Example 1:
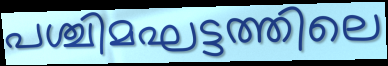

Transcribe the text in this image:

പശ്ചിമഘട്ടത്തിലെ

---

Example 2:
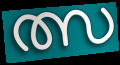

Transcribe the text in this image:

ത്സ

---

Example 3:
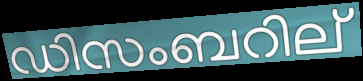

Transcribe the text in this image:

ഡിസംബറില്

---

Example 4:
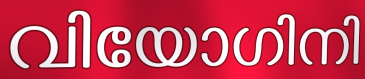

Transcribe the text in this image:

വിയോഗിനി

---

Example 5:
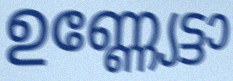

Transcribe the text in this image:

ഉണ്ണ്യേട്ടാ